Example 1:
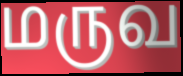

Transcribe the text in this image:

மருவ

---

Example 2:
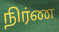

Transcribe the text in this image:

நிர்ண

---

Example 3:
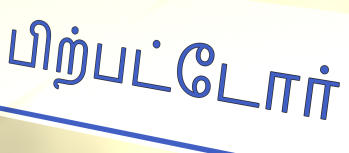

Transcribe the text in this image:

பிற்பட்டோர்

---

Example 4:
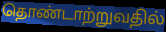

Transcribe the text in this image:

தொண்டாற்றுவதில்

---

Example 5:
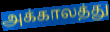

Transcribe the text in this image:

அக்காலத்து